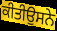
ਕੀਤੀਉਸਨੇ